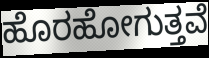
ಹೊರಹೋಗುತ್ತವೆ